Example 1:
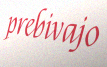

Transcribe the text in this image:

prebivajo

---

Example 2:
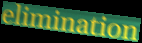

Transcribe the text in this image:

elimination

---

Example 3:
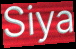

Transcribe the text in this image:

Siya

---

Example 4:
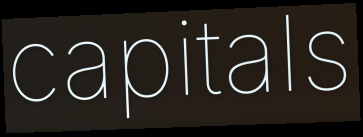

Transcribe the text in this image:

capitals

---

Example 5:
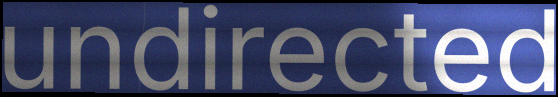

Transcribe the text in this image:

undirected